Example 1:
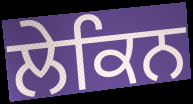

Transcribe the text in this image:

ਲੇਕਿਨ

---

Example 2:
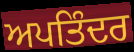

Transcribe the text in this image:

ਅਪਤਿੰਦਰ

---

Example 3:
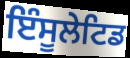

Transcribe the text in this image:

ਇੰਸੂਲੇਟਿਡ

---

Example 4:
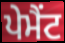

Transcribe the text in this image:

ਪੇਮੈਂਟ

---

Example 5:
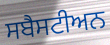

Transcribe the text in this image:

ਸਬੈਸਟੀਅਨ